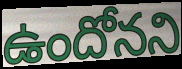
ఉందోనని